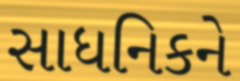
સાધનિકને